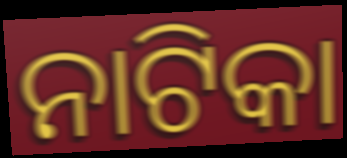
ନାଟିକା